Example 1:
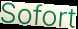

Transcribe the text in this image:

Sofort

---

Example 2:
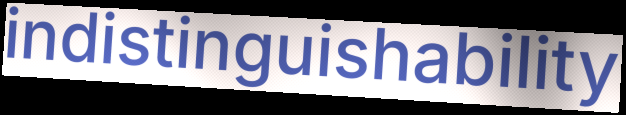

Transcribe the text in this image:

indistinguishability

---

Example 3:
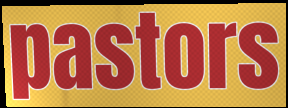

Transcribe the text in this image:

pastors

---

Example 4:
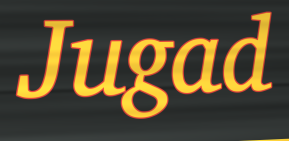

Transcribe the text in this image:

Jugad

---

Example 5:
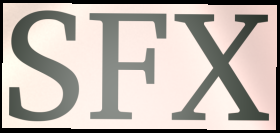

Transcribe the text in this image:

SFX